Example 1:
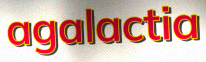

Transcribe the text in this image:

agalactia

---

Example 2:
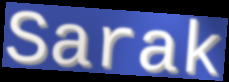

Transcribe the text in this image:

Sarak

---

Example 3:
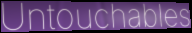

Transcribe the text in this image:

Untouchables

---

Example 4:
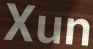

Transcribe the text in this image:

Xun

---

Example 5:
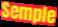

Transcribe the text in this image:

Semple